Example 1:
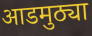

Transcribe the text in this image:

आडमुठ्या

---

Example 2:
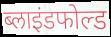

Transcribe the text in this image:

ब्लाइंडफोल्ड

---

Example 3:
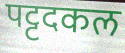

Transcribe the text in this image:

पट्टदकल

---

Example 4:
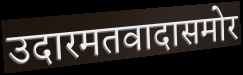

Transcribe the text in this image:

उदारमतवादासमोर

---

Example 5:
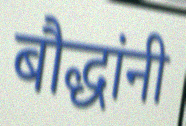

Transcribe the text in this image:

बौद्धांनी